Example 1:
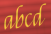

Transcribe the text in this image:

abcd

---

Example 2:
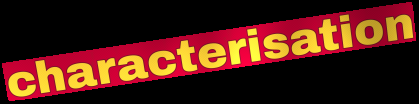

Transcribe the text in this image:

characterisation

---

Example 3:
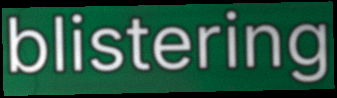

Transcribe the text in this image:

blistering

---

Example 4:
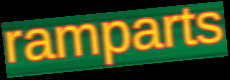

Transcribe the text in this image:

ramparts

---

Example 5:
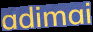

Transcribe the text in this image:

adimai